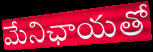
మేనిఛాయతో